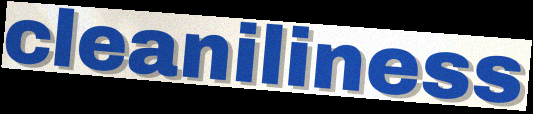
cleaniliness